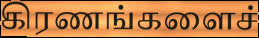
கிரணங்களைச்